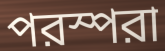
পরস্পরা